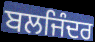
ਬਲਜਿੰਦਰ